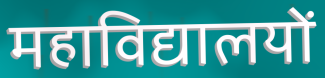
महाविद्यालयों